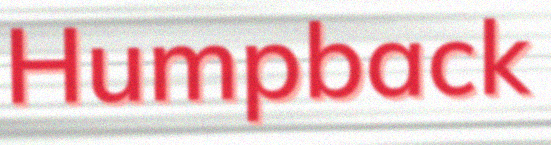
Humpback